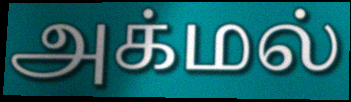
அக்மல்